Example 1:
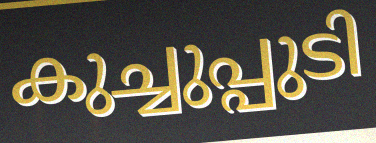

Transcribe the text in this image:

കുച്ചുപ്പുടി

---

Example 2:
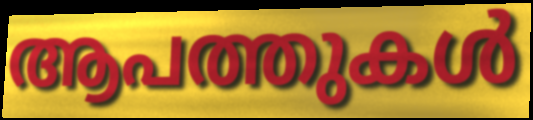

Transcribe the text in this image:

ആപത്തുകൾ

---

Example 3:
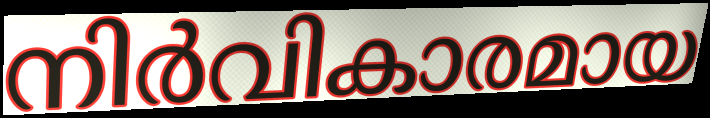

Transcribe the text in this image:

നിർവികാരമായ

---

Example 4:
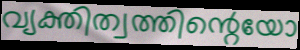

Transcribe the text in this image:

വ്യക്തിത്വത്തിന്റെയോ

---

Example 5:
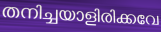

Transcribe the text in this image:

തനിച്ചയാളിരിക്കവേ